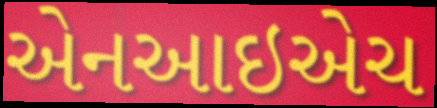
એનઆઇએચ